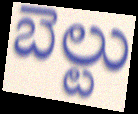
బెల్టు